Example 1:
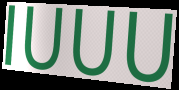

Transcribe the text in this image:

IUUU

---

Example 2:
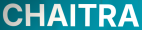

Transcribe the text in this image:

CHAITRA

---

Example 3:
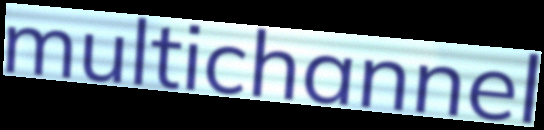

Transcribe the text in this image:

multichannel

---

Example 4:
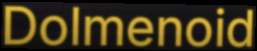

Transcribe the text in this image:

Dolmenoid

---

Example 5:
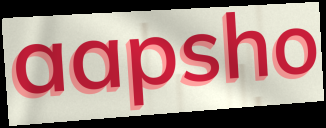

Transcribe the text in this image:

aapsho